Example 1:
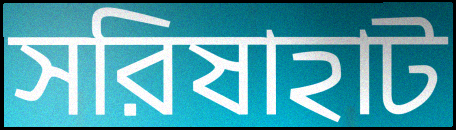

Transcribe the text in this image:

সরিষাহাট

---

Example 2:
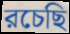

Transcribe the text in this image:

রচেছি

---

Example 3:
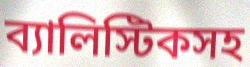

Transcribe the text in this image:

ব্যালিস্টিকসহ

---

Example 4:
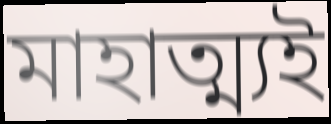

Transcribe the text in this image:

মাহাত্ম্যই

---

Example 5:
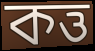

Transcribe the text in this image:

কত্ত